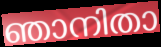
ഞാനിതാ